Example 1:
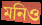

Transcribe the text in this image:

মনিও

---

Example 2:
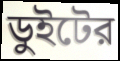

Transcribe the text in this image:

ডুইটের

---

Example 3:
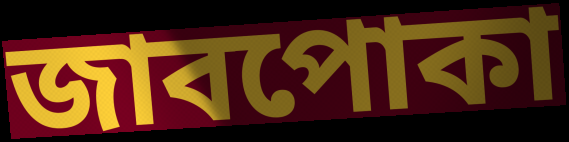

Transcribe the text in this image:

জাবপোকা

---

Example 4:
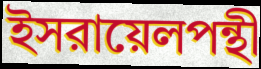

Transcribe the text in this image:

ইসরায়েলপন্থী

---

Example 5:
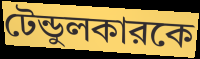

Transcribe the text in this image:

টেন্ডুলকারকে